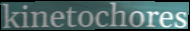
kinetochores